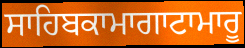
ਸਾਹਿਬਕਾਮਾਗਾਟਾਮਾਰੂ